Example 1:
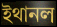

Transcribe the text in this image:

ইথানল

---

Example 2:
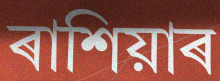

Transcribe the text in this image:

ৰাশিয়াৰ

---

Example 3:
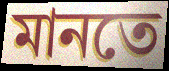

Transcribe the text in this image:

মানতে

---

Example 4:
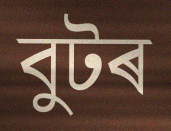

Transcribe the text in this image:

বুটৰ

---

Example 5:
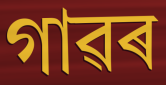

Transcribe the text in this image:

গাৱৰ